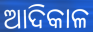
ଆଦିକାଳ